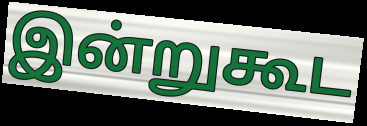
இன்றுகூட